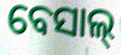
ବେସାଲ୍